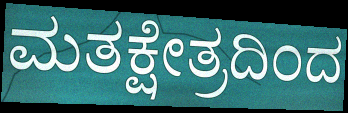
ಮತಕ್ಷೇತ್ರದಿಂದ